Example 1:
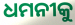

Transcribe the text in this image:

ଧମନୀକୁ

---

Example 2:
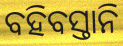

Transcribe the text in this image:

ବହିବସ୍ତାନି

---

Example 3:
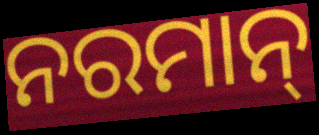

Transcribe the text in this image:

ନରମାନ୍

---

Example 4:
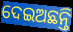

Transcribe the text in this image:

ଦେଇଅଛନ୍ତି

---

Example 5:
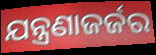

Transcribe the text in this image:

ଯନ୍ତ୍ରଣାଜର୍ଜର